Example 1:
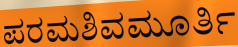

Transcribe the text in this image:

ಪರಮಶಿವಮೂರ್ತಿ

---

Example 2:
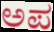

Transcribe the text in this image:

ಅಪ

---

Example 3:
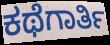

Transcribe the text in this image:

ಕಥೆಗಾರ್ತಿ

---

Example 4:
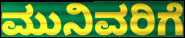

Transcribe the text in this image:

ಮುನಿವರಿಗೆ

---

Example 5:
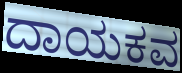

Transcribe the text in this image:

ದಾಯಕವ